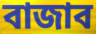
বাজাব